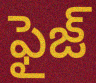
ఫైజ్